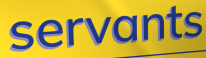
servants